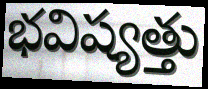
భవిష్యత్తు